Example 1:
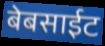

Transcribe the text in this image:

बेबसाईट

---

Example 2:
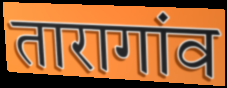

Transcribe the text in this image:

तारागांव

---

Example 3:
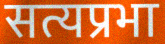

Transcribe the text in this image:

सत्यप्रभा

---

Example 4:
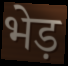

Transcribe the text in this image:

भेड़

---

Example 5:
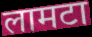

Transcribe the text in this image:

लामटा